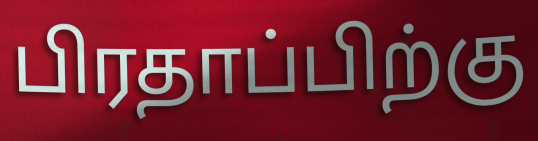
பிரதாப்பிற்கு